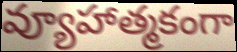
వ్యూహాత్మకంగా